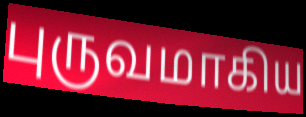
புருவமாகிய